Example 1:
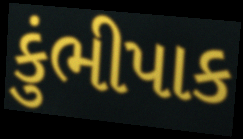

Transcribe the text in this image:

કુંભીપાક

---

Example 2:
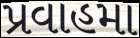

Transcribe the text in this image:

પ્રવાહમા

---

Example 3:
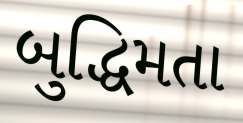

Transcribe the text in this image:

બુદ્ધિમતા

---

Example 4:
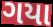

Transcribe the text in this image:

ગયા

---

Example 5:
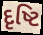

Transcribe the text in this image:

દૃષ્ટિ